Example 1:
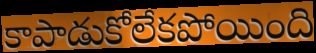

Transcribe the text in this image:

కాపాడుకోలేకపోయింది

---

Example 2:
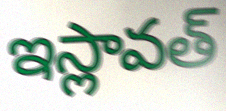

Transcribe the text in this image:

ఇస్లావత్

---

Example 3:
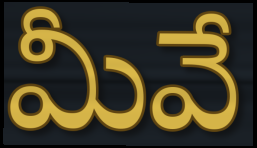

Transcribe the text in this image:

మీవే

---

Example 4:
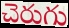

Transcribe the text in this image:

చెరుగు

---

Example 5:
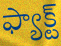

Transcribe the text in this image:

ఫ్యాక్ట్